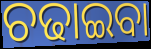
ଚଢାଇବା